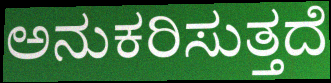
ಅನುಕರಿಸುತ್ತದೆ